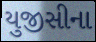
યુજીસીના